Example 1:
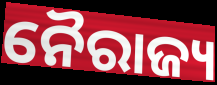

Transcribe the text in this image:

ନୈରାଜ୍ୟ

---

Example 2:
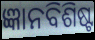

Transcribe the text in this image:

ଜ୍ଞାନବିଶିଷ୍ଟ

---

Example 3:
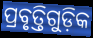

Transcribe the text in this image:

ପ୍ରବୃତ୍ତିଗୁଡ଼ିକ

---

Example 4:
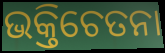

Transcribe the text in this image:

ଭକ୍ତିଚେତନା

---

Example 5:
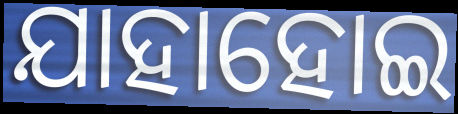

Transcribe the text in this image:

ଯାହାହୋଇ